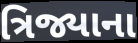
ત્રિજ્યાના